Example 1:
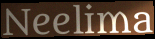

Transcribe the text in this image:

Neelima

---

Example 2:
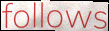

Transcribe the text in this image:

follows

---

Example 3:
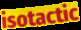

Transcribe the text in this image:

isotactic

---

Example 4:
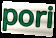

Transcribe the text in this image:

pori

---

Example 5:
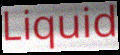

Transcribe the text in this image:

Liquid